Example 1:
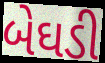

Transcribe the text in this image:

બેઘડી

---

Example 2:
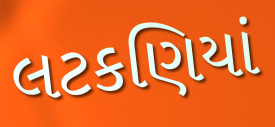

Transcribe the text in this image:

લટકણિયાં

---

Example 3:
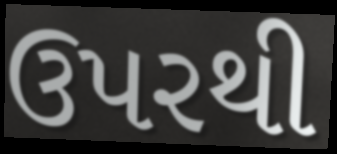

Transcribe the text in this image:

ઉપરથી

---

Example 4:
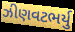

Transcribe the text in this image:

ઝીણવટભર્યુ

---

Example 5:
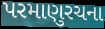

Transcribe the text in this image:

પરમાણુરચના